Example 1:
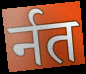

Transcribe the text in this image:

र्नत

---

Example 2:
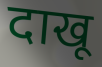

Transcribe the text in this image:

दाखू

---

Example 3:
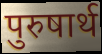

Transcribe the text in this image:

पुरुषार्थ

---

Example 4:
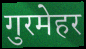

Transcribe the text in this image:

गुरमेहर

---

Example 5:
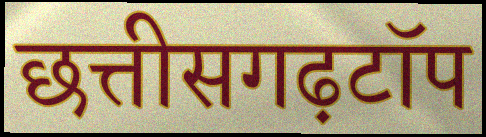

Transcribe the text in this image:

छत्तीसगढ़टॉप